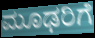
ಮೂಢರಿಗೆ